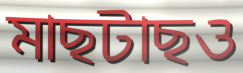
মাছটাছও